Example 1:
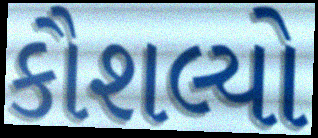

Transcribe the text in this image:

કૌશલ્યો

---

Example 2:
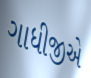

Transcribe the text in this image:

ગાધીજીએ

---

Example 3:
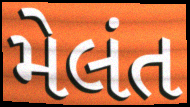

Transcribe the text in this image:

મેલંત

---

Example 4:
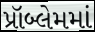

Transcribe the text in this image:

પ્રૉબ્લેમમાં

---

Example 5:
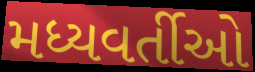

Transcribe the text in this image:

મધ્યવર્તીઓ